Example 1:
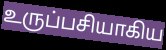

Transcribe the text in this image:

உருப்பசியாகிய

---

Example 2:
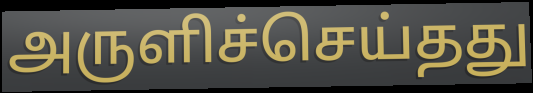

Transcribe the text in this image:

அருளிச்செய்தது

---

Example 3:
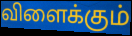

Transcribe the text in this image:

விளைக்கும்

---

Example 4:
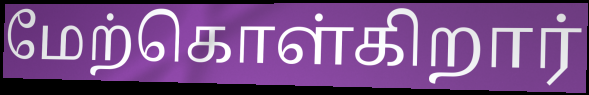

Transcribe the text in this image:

மேற்கொள்கிறார்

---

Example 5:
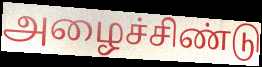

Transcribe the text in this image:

அழைச்சிண்டு